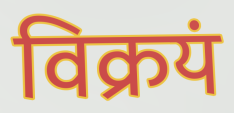
विक्रयं